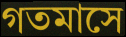
গতমাসে